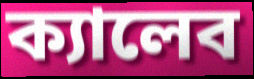
ক্যালেব